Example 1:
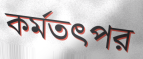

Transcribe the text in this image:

কর্মতৎপর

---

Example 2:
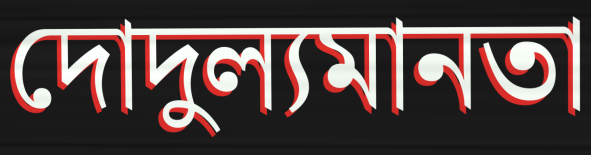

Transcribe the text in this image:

দোদুল্যমানতা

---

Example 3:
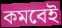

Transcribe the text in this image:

কমবেই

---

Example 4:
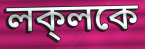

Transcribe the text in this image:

লক্‌লকে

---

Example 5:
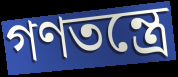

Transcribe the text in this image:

গণতন্ত্রে